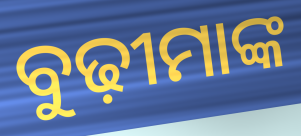
ବୁଢ଼ୀମାଙ୍କ